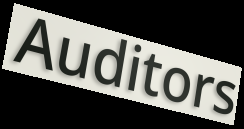
Auditors